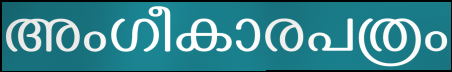
അംഗീകാരപത്രം